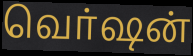
வெர்ஷன்